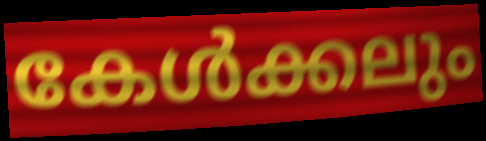
കേൾക്കലും